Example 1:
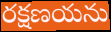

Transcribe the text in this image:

రక్షణయను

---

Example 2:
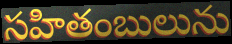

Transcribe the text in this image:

సహితంబులును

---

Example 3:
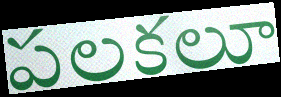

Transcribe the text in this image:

పలకలూ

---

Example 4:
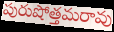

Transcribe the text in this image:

పురుషోత్తమరావు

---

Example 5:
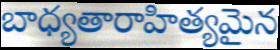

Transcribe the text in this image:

బాధ్యతారాహిత్యమైన